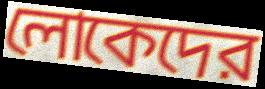
লোকেদের